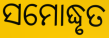
ସମୋଦ୍ଧୃତ